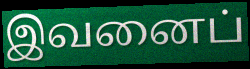
இவனைப்